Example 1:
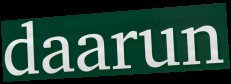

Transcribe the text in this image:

daarun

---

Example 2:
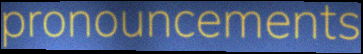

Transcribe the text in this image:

pronouncements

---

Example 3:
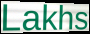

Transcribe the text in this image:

Lakhs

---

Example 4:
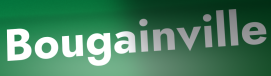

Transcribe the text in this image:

Bougainville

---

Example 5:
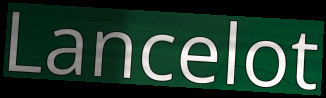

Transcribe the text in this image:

Lancelot